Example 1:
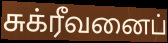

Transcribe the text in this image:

சுக்ரீவனைப்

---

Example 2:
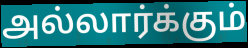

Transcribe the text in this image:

அல்லார்க்கும்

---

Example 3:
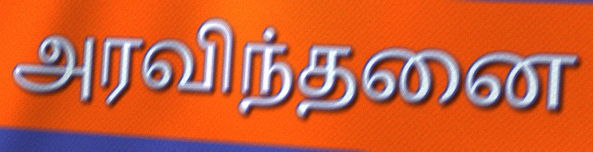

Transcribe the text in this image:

அரவிந்தனை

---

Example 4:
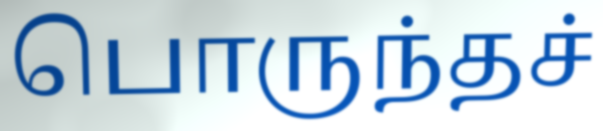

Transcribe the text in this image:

பொருந்தச்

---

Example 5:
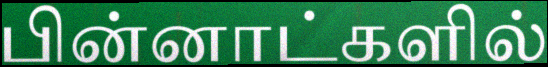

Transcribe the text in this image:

பின்னாட்களில்